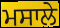
ਮਸਾਲੇ